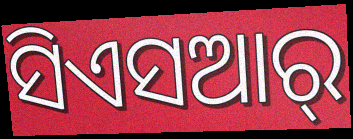
ସିଏସଆର୍